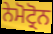
ਨੇਮੋਟ੍ਰੋਨ